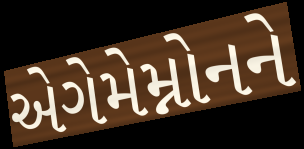
એગેમેમ્નોનને